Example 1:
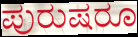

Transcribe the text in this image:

ಪುರುಷರೂ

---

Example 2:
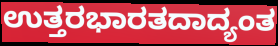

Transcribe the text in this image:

ಉತ್ತರಭಾರತದಾದ್ಯಂತ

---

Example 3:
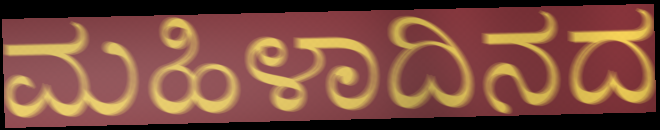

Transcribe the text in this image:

ಮಹಿಳಾದಿನದ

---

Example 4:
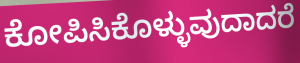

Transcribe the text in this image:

ಕೋಪಿಸಿಕೊಳ್ಳುವುದಾದರೆ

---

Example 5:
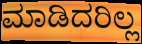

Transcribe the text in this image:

ಮಾಡಿದರಿಲ್ಲ